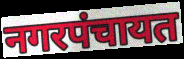
नगरपंचायत